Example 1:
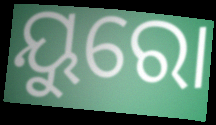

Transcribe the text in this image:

ୟୁରୋ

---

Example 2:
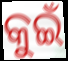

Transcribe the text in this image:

କୁଇଁ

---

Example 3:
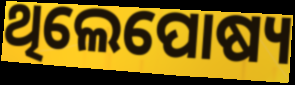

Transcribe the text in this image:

ଥିଲେପୋଷ୍ୟ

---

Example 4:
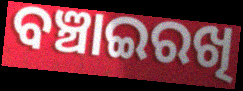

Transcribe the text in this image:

ବଞ୍ଚାଇରଖି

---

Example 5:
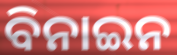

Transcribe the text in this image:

ବିନାଇନ